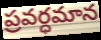
ప్రవర్ధమాన